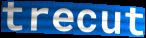
trecut